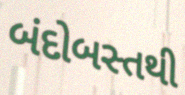
બંદોબસ્તથી